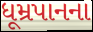
ધૂમ્રપાનના